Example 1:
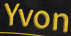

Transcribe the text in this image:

Yvon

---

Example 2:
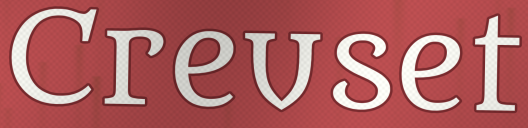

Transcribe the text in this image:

Creuset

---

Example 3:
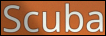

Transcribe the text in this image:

Scuba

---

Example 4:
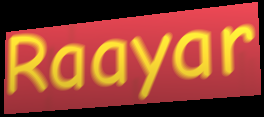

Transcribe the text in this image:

Raayar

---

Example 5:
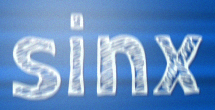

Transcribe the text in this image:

sinx